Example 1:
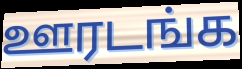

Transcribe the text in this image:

ஊரடங்க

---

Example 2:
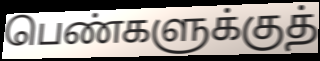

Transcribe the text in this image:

பெண்களுக்குத்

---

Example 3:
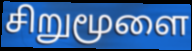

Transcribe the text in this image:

சிறுமூளை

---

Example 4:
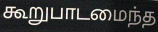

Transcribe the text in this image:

கூறுபாடமைந்த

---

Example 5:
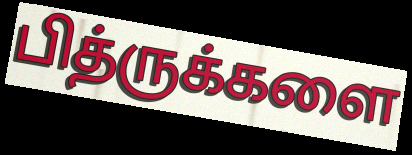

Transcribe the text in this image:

பித்ருக்களை